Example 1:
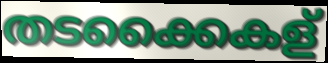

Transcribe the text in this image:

തടക്കൈകള്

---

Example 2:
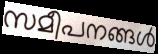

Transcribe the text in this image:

സമീപനങ്ങൾ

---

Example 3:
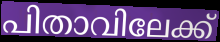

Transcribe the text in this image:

പിതാവിലേക്ക്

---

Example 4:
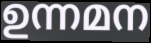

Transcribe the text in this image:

ഉന്നമന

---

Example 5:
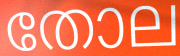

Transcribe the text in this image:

തോല